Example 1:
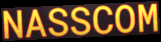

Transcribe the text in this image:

NASSCOM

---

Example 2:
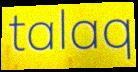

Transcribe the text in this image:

talaq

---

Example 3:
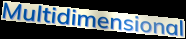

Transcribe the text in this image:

Multidimensional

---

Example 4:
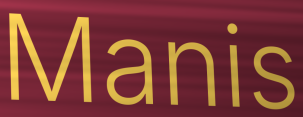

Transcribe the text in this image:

Manis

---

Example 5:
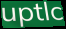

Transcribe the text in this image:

uptlc